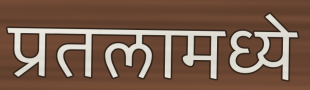
प्रतलामध्ये